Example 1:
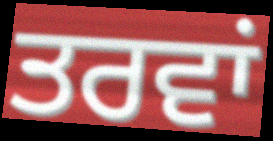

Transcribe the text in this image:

ਤਰਵਾਂ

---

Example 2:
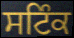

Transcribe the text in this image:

ਸਟਿੰਕ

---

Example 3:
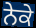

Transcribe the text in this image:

ਨੇਕੇ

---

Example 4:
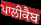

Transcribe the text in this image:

ਪਾਲੀਕੈਬ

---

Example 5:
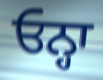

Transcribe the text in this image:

ਓਨ੍ਹਾ